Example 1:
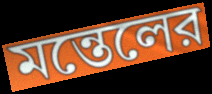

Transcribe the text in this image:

মন্তেলের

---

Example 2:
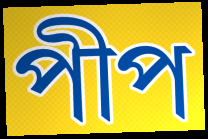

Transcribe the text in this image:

পীপ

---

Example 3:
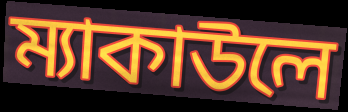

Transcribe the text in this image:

ম্যাকাউলে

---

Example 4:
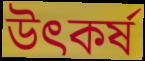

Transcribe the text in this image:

উৎকর্ষ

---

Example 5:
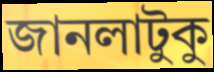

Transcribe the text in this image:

জানলাটুকু